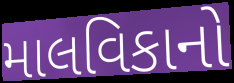
માલવિકાનો